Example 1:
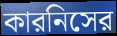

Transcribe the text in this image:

কারনিসের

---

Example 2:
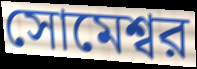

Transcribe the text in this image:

সোমেশ্বর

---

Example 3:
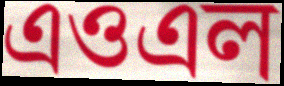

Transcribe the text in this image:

এওএল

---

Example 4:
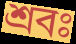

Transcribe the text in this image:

শ্রবঃ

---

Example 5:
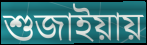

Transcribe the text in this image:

শুজাইয়ায়